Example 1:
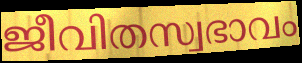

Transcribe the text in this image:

ജീവിതസ്വഭാവം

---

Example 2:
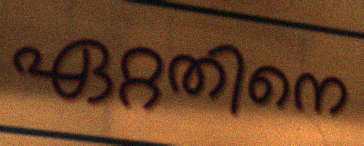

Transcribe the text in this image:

ഏറ്റതിനെ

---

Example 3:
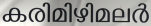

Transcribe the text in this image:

കരിമിഴിമലർ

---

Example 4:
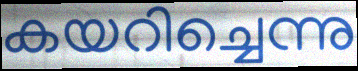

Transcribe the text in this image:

കയറിച്ചെന്നു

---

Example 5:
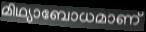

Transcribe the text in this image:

മിഥ്യാബോധമാണ്